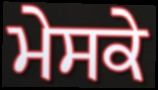
ਮੇਸਕੇ